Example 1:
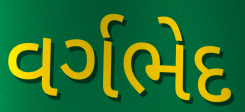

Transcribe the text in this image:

વર્ગભેદ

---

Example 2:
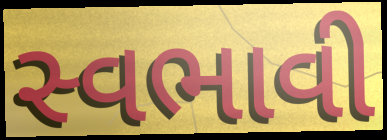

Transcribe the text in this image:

સ્વભાવી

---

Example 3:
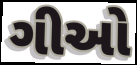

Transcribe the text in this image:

ગીઓ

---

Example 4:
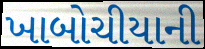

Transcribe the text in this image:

ખાબોચીયાની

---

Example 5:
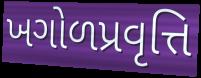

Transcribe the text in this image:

ખગોળપ્રવૃત્તિ